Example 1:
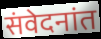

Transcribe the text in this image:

संवेदनांत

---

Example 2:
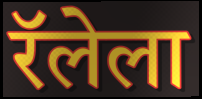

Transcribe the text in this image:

रॅलेला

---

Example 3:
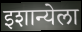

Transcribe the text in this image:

इशान्येला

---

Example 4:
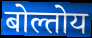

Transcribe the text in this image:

बोल्तोय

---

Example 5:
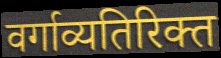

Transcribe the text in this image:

वर्गाव्यतिरिक्त